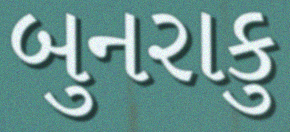
બુનરાકુ